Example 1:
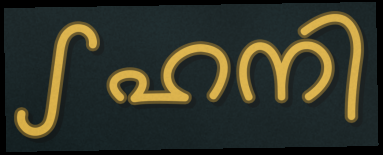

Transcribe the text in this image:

ഽഹനി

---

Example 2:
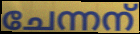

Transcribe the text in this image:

ചേന്നന്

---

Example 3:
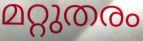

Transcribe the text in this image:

മറ്റുതരം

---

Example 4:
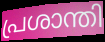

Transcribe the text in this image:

പ്രശാന്തി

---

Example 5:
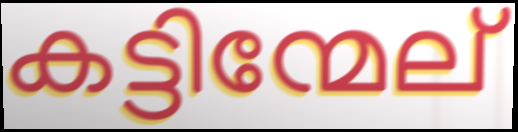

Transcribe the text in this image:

കട്ടിന്മേല്